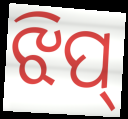
ଝିପ୍